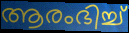
ആരംഭിച്ച്